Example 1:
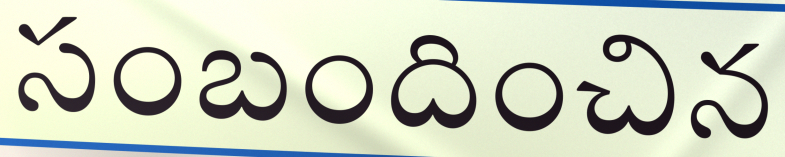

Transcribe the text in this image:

సంబందించిన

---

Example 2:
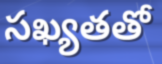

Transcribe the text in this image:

సఖ్యతతో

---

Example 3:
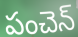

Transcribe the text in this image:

పంచెన్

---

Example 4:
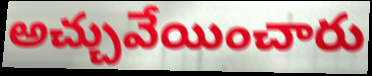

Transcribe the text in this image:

అచ్చువేయించారు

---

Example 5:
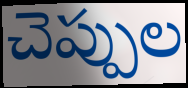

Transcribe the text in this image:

చెప్పుల